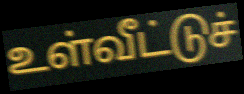
உள்வீட்டுச்